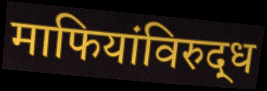
माफियांविरुद्ध